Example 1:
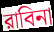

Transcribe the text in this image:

রাবিনা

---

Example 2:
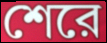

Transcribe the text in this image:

শেরে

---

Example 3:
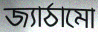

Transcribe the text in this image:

জ্যাঠামো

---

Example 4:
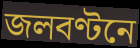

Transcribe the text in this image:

জলবণ্টনে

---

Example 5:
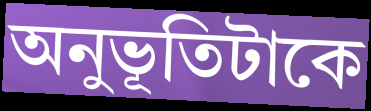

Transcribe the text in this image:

অনুভূতিটাকে